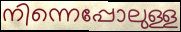
നിന്നെപ്പോലുള്ള